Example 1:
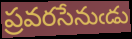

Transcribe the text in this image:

ప్రవరసేనుఁడు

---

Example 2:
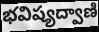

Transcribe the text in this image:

భవిష్యద్వాణి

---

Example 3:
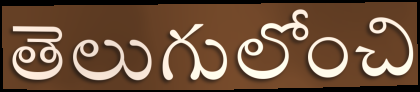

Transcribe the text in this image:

తెలుగులోంచి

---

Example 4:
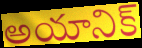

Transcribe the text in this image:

అయానిక్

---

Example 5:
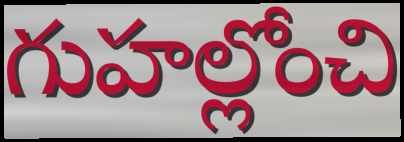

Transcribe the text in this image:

గుహల్లోంచి